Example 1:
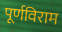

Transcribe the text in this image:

पूर्णविराम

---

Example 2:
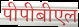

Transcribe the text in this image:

पीपीबीएल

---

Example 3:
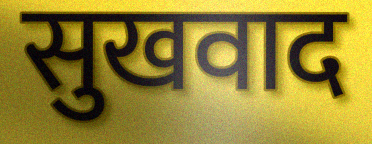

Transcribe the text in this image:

सुखवाद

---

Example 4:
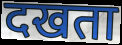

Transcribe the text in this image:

दखता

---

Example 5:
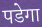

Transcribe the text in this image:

पडेगा